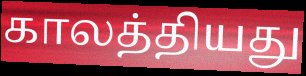
காலத்தியது